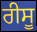
ਰੀਸੂ